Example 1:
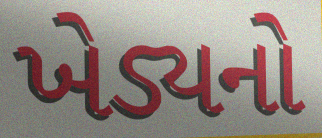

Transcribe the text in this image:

ખેડ્યનો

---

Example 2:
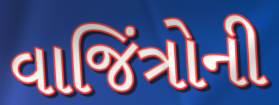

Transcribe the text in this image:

વાજિંત્રોની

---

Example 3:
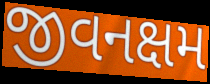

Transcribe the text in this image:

જીવનક્ષમ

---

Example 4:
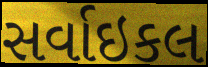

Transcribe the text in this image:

સર્વાઇકલ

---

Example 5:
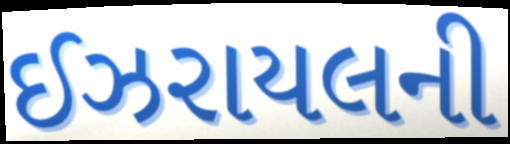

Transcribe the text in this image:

ઈઝરાયલની